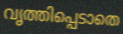
വൃത്തിപ്പെടാതെ